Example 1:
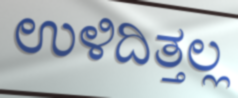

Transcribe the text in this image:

ಉಳಿದಿತ್ತಲ್ಲ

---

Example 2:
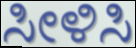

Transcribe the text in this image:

ಸೀಳಿಸಿ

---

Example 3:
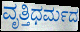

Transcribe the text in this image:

ವೃತ್ತಿಧರ್ಮದ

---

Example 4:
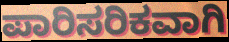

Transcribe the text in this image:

ಪಾರಿಸರಿಕವಾಗಿ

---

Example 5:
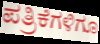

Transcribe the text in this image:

ಪತ್ರಿಕೆಗಳಿಗೂ